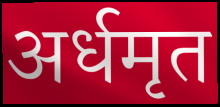
अर्धमृत